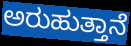
ಅರುಹುತ್ತಾನೆ